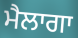
ਮੈਲਾਗਾ